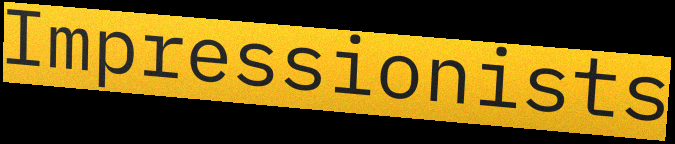
Impressionists